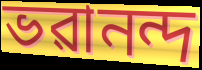
ভৱানন্দ